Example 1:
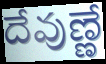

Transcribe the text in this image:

దేవుణ్ణే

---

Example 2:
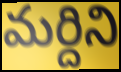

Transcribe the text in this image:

మర్దిని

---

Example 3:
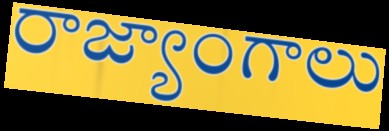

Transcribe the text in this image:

రాజ్యాంగాలు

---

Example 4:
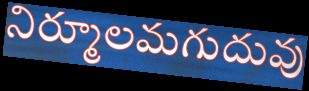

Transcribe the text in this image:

నిర్మూలమగుదువు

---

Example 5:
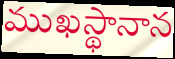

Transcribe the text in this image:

ముఖస్థానాన